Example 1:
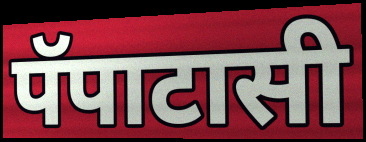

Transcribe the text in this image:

पॅपाटासी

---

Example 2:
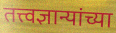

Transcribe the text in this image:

तत्त्वज्ञान्यांच्या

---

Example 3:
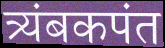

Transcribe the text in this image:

त्र्यंबकपंत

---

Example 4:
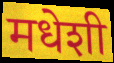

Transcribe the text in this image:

मधेशी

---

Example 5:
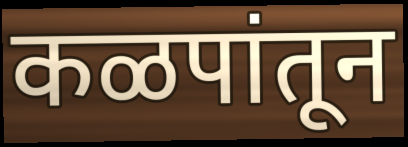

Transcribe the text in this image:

कळपांतून